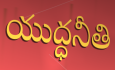
యుద్ధనీతి